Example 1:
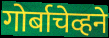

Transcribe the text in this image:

गोर्बाचेव्हने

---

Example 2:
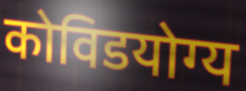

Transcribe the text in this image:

कोविडयोग्य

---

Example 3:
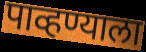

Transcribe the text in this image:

पाव्हण्याला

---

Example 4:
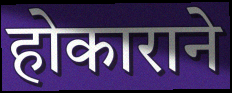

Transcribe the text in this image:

होकाराने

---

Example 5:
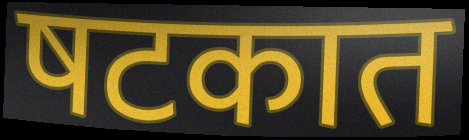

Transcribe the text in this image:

षटकात